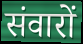
संवारों